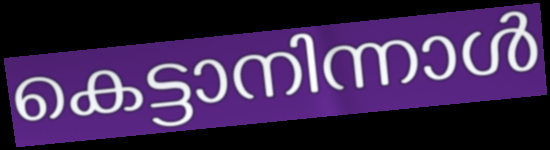
കെട്ടാനിന്നാൾ